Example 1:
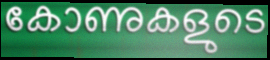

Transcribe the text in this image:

കോണുകളുടെ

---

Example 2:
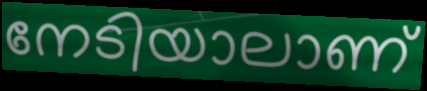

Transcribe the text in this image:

നേടിയാലാണ്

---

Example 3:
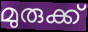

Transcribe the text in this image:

മുരുക്ക്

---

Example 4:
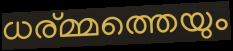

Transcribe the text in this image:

ധര്മ്മത്തെയും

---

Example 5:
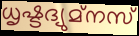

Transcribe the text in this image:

ധൃഷ്ടദ്യുമ്നസ്